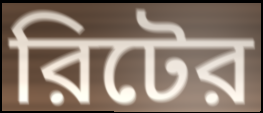
রিটের